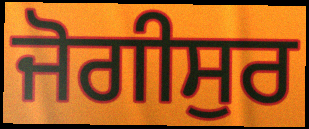
ਜੋਗੀਸੁਰ